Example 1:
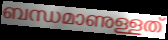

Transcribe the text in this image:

ബന്ധമാണുള്ളത്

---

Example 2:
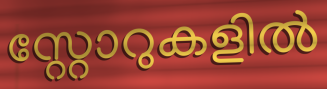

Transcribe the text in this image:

സ്റ്റോറുകളിൽ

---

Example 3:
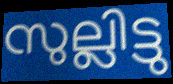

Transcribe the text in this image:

സുല്ലിട്ടു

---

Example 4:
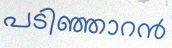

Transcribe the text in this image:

പടിഞ്ഞാറൻ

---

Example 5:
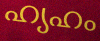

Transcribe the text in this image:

ഹ്യഹം